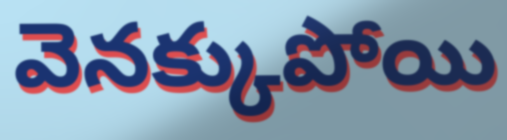
వెనక్కుపోయి